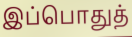
இப்பொதுத்